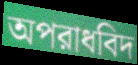
অপরাধবিদ